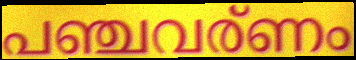
പഞ്ചവര്ണം